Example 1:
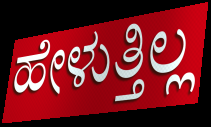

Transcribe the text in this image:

ಹೇಳುತ್ತಿಲ್ಲ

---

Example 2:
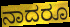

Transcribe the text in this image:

ನಾದರೂ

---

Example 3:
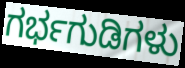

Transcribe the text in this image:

ಗರ್ಭಗುಡಿಗಳು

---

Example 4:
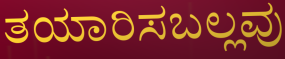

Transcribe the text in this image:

ತಯಾರಿಸಬಲ್ಲವು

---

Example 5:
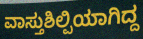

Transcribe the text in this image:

ವಾಸ್ತುಶಿಲ್ಪಿಯಾಗಿದ್ದ